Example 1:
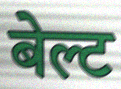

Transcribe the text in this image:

बेल्ट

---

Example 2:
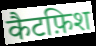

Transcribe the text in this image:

कैटफ़िश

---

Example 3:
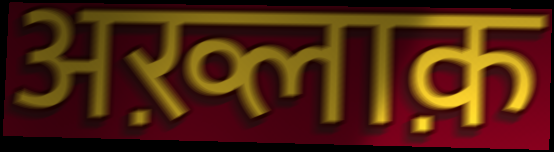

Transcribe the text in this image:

अख़्लाक़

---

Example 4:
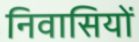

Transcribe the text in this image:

निवासियों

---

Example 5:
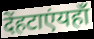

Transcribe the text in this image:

देंहटाएंयहाँ